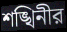
শঙ্খিনীর